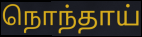
நொந்தாய்